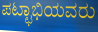
ಪಟ್ಟಾಭಿಯವರು